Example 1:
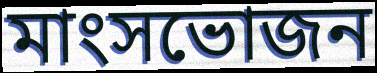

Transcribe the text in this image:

মাংসভোজন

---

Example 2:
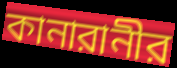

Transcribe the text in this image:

কানারানীর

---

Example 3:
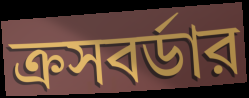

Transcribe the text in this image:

ক্রসবর্ডার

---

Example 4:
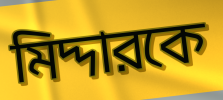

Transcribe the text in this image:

মিদ্দারকে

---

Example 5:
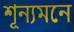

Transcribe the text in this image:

শূন্যমনে